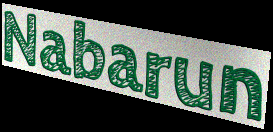
Nabarun